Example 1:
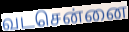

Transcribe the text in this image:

வடசென்னை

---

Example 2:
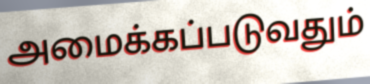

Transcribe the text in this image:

அமைக்கப்படுவதும்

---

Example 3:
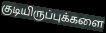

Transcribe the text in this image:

குடியிருப்புக்களை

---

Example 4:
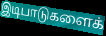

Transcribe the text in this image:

இடிபாடுகளைக்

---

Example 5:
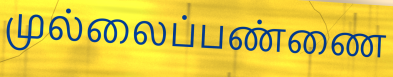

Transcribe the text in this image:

முல்லைப்பண்ணை